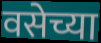
वसेच्या